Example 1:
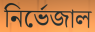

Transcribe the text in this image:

নির্ভেজাল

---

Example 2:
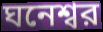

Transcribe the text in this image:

ঘনেশ্বর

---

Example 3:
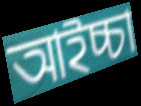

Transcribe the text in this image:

আইচ্চা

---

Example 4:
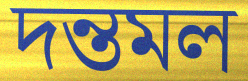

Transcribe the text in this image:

দন্তমল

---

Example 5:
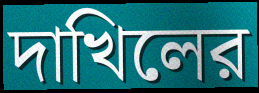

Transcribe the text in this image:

দাখিলের